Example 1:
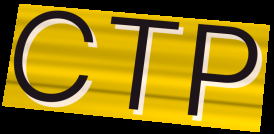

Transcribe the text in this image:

CTP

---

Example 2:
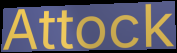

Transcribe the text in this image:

Attock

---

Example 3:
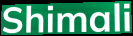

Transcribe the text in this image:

Shimali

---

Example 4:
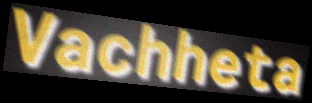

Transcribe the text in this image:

Vachheta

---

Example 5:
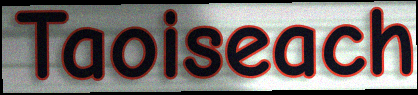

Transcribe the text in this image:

Taoiseach